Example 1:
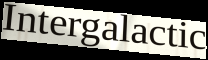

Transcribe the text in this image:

Intergalactic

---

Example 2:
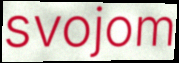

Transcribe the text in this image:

svojom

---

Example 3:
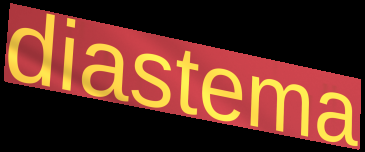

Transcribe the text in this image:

diastema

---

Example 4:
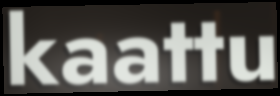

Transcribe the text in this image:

kaattu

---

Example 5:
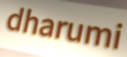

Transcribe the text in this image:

dharumi